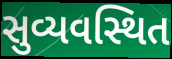
સુવ્યવસ્થિત